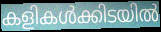
കളികൾക്കിടയിൽ